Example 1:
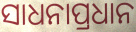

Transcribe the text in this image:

ସାଧନାପ୍ରଧାନ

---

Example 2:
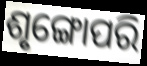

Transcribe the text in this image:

ଶୃଙ୍ଗୋପରି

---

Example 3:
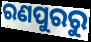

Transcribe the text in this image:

ରଣପୁରରୁ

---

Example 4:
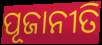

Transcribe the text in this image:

ପୂଜାନୀତି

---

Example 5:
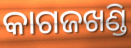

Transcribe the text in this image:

କାଗଜଖଣ୍ଡି